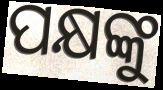
ପକ୍ଷଙ୍କୁ